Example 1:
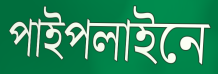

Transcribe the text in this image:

পাইপলাইনে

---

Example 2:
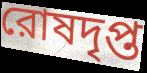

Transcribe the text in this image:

রোষদৃপ্ত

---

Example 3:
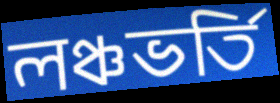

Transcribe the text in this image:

লঞ্চভর্তি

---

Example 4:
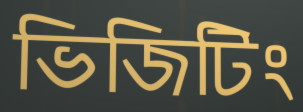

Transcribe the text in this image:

ভিজিটিং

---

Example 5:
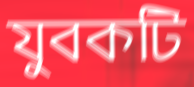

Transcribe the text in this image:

যুবকটি